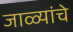
जाळ्यांचे